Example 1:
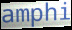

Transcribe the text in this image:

amphi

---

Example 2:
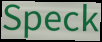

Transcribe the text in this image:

Speck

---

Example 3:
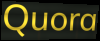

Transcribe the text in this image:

Quora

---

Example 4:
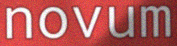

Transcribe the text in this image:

novum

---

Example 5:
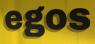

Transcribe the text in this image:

egos